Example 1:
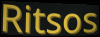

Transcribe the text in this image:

Ritsos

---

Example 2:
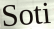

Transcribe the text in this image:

Soti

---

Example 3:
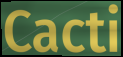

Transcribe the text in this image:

Cacti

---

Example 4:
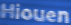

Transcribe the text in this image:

Hiouen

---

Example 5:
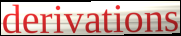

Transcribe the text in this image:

derivations